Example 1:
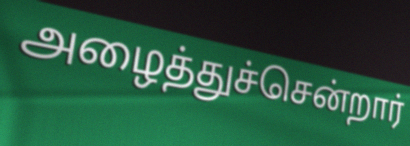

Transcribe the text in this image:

அழைத்துச்சென்றார்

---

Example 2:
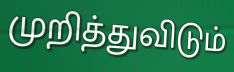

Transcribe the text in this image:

முறித்துவிடும்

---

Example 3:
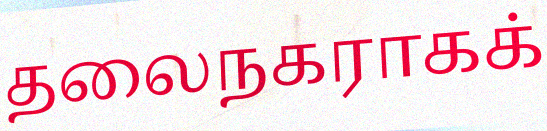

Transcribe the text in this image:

தலைநகராகக்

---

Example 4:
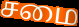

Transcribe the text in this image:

சமை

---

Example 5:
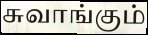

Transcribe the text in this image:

சுவாங்கும்